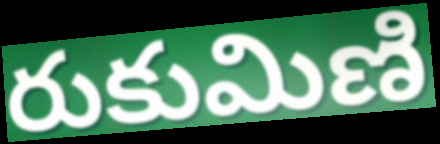
రుకుమిణి